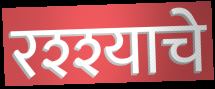
रश्श्याचे